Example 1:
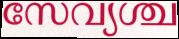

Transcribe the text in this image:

സേവ്യശ്ച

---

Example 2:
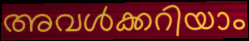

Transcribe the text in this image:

അവൾക്കറിയാം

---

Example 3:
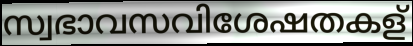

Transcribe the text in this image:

സ്വഭാവസവിശേഷതകള്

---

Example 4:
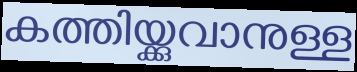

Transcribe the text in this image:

കത്തിയ്ക്കുവാനുള്ള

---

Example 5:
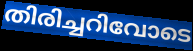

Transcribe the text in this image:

തിരിച്ചറിവോടെ